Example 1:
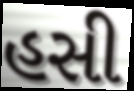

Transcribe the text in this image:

હસી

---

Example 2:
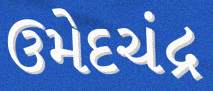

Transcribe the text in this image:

ઉમેદચંદ્ર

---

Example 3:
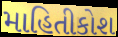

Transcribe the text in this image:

માહિતીકોશ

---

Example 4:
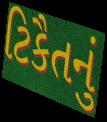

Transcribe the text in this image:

ટિકૈતનું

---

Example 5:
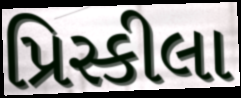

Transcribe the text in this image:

પ્રિસ્કીલા